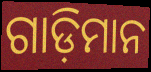
ଗାଡ଼ିମାନ